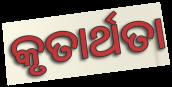
କୃତାର୍ଥତା